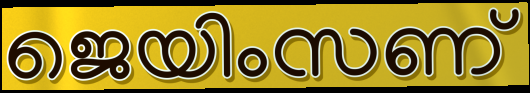
ജെയിംസണ്